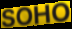
SOHO